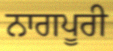
ਨਾਗਪੂਰੀ